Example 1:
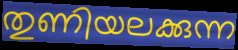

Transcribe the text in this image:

തുണിയലക്കുന്ന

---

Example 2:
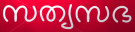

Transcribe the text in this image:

സത്യസഭ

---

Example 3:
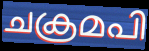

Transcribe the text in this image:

ചക്രമപി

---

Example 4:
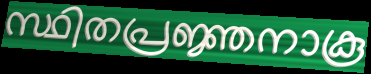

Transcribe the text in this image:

സ്ഥിതപ്രജ്ഞനാകൂ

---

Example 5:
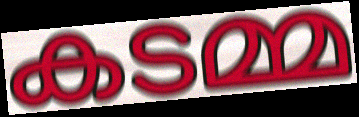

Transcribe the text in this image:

കടമ്മ